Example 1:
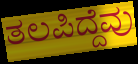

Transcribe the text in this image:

ತಲಪಿದ್ದೆವು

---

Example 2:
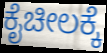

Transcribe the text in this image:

ಕೈಚೀಲಕ್ಕೆ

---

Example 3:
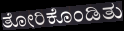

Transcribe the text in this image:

ತೋರಿಕೊಂಡಿತು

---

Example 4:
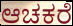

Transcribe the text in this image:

ಆಚಕರೆ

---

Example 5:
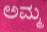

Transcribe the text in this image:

ಅಮ್ಮ